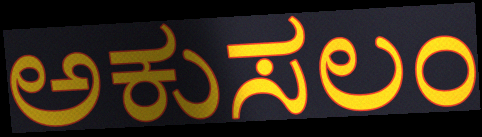
ಅಕುಸಲಂ